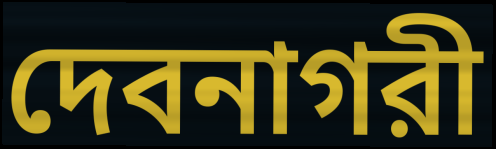
দেবনাগরী